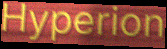
Hyperion